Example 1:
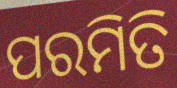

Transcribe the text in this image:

ପରମିତି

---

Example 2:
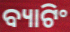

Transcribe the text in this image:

ବ୍ୟାଟିଂ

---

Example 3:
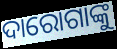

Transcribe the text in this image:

ଦାରୋଗାଙ୍କୁ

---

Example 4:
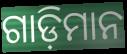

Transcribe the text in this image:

ଗାଡ଼ିମାନ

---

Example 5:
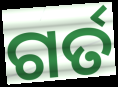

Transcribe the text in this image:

ଗର୍ତ